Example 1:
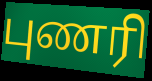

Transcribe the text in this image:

புணரி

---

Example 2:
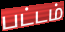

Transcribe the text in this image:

பட்டம்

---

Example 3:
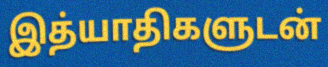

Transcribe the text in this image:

இத்யாதிகளுடன்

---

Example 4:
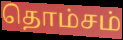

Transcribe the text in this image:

தொம்சம்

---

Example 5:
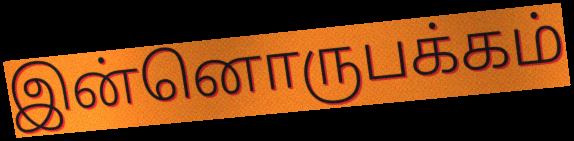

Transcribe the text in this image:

இன்னொருபக்கம்